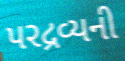
પરદ્રવ્યની